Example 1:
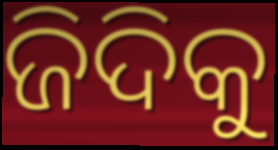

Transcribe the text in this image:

ଜିଦିକୁ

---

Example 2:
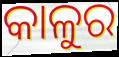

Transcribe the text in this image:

କାଳୁର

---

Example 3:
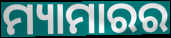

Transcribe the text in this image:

ମ୍ୟାମାରର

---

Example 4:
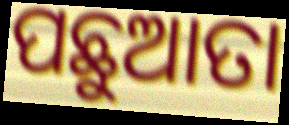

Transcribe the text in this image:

ପଛୁଆତା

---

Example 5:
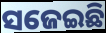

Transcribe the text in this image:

ସଜେଇଛି